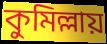
কুমিল্লায়